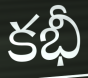
కభీ